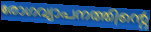
രോഗവ്യാപനത്തിന്റെ